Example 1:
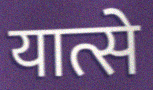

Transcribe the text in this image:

यात्से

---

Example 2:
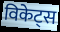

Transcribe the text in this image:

विकेट्स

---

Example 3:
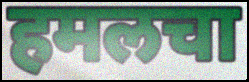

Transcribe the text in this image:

हमलचा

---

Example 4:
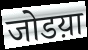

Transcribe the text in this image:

जोडय़ा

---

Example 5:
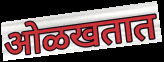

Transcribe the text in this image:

ओळखतात